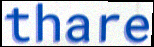
thare